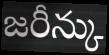
జరీన్కు